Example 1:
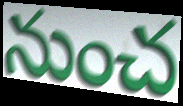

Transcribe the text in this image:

నుంచ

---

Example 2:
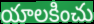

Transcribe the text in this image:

యాలకించు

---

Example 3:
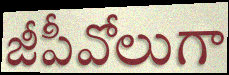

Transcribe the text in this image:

జీపీవోలుగా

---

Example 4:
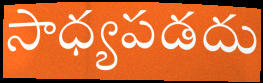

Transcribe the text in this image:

సాధ్యపడదు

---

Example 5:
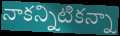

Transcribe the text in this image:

నాకన్నిటికన్నా